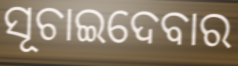
ସୂଚାଇଦେବାର